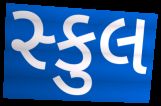
સ્કુલ